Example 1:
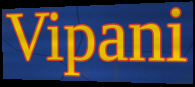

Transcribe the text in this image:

Vipani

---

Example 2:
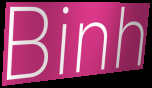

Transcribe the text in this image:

Binh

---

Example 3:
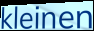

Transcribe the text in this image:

kleinen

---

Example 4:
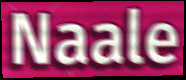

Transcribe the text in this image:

Naale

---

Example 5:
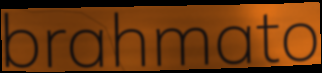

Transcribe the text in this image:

brahmato